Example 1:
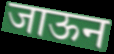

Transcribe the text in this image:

जाऊन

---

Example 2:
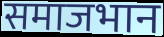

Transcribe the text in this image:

समाजभान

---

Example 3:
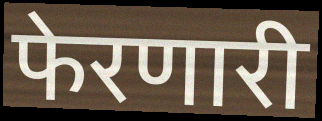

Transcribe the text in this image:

फेरणारी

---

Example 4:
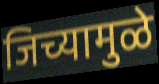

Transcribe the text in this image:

जिच्यामुळे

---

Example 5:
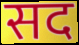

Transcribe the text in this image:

सद